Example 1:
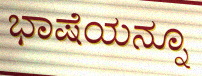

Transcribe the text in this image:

ಭಾಷೆಯನ್ನೂ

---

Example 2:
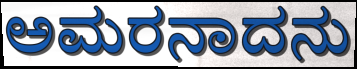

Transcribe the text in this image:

ಅಮರನಾದನು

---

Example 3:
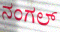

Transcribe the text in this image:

ನಂಗಲ್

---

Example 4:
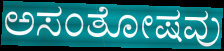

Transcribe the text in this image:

ಅಸಂತೋಷವು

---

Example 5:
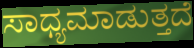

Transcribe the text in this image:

ಸಾಧ್ಯಮಾಡುತ್ತದೆ